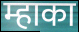
म्हाका